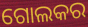
ଗୋଲକର